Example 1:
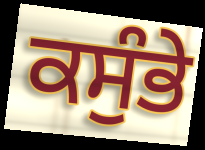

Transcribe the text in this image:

ਕਸੁੰਭੇ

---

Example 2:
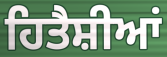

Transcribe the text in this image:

ਹਿਤੈਸ਼ੀਆਂ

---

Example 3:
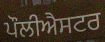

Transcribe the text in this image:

ਪੌਲੀਐਸਟਰ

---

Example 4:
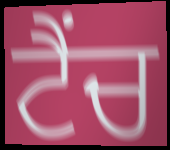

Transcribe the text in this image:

ਟੈਂਚ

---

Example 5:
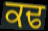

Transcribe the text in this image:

ਕਢ